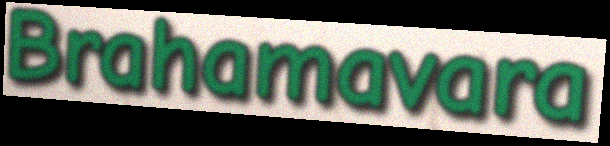
Brahamavara